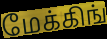
மேக்கிங்